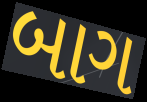
બાગ